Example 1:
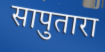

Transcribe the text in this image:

सापुतारा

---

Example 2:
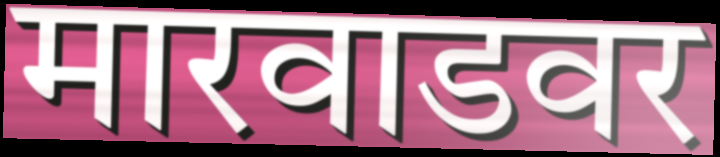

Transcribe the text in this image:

मारवाडवर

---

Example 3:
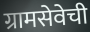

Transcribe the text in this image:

ग्रामसेवेची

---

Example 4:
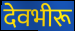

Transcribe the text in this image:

देवभीरू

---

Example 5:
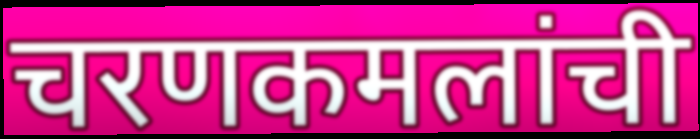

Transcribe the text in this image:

चरणकमलांची